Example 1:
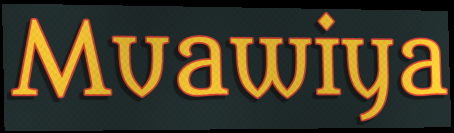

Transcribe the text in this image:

Muawiya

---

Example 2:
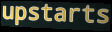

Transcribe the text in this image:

upstarts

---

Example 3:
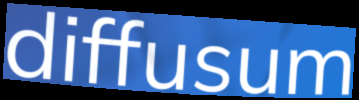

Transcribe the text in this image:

diffusum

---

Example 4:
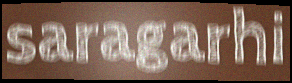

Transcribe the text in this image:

saragarhi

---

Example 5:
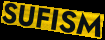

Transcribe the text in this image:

SUFISM